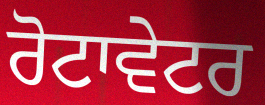
ਰੋਟਾਵੇਟਰ